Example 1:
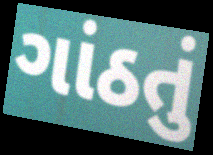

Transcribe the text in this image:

ગાંઠતું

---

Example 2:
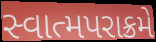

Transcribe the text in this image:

સ્વાત્મપરાક્રમે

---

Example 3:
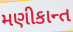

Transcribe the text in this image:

મણીકાન્ત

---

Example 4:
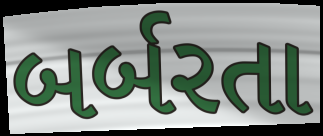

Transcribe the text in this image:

બર્બરતા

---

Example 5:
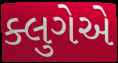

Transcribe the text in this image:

ક્લુગેએ